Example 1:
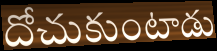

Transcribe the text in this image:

దోచుకుంటాడు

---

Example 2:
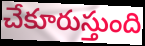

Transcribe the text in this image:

చేకూరుస్తుంది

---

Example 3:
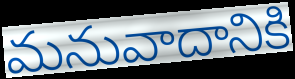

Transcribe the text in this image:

మనువాదానికి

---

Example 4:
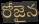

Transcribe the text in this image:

రోజైన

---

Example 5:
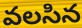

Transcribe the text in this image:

వలసిన